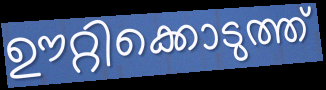
ഊറ്റിക്കൊടുത്ത്